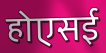
होएसई